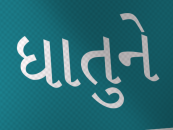
ધાતુને